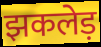
झकलेड़